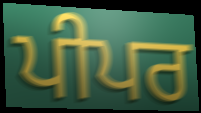
ਪੀਪਰ